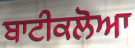
ਬਾਟੀਕਲੋਆ